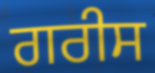
ਗਰੀਸ